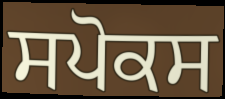
ਸਪੋਕਸ